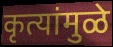
कृत्यांमुळे